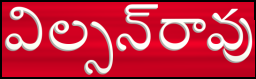
విల్సన్‌రావు